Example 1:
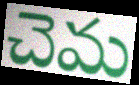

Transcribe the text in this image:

చెమ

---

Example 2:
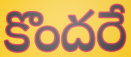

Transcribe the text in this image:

కొందరే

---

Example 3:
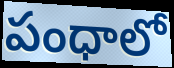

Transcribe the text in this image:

పంధాలో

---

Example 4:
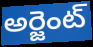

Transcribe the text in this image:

అర్జెంట్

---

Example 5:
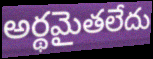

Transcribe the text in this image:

అర్థమైతలేదు